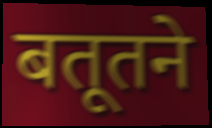
बतूतने